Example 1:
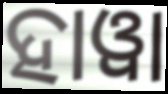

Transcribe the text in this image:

ହାୱା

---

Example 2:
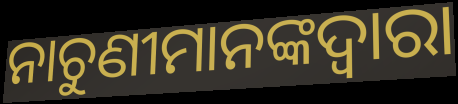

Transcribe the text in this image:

ନାଚୁଣୀମାନଙ୍କଦ୍ୱାରା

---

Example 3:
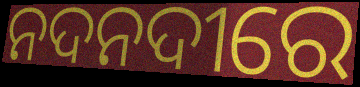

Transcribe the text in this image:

ନଦନଦୀରେ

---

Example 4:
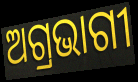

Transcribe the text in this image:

ଅଗ୍ରଭାଗୀ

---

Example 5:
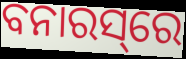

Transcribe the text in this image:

ବନାରସ୍‌ରେ